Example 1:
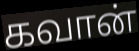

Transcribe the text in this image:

கவான்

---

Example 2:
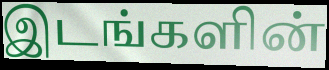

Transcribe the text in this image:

இடங்களின்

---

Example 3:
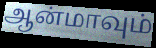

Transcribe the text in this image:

ஆன்மாவும்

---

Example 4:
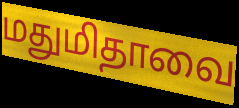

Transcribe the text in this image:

மதுமிதாவை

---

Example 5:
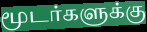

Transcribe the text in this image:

மூடர்களுக்கு